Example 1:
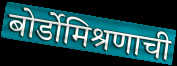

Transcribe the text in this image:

बोर्डोमिश्रणाची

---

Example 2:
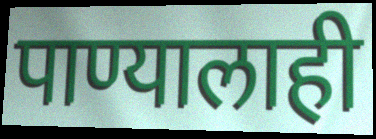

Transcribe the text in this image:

पाण्यालाही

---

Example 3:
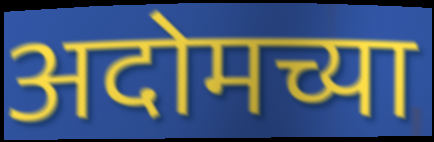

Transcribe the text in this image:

अदोमच्या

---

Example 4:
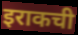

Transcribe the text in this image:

इराकची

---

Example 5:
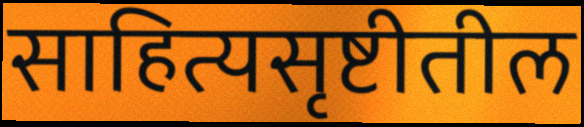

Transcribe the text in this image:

साहित्यसृष्टीतील